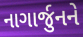
નાગાર્જુનને